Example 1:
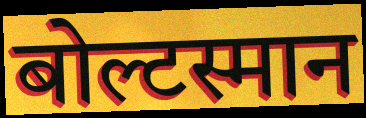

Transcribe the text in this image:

बोल्टस्मान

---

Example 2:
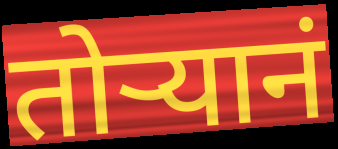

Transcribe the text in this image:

तोऱ्यानं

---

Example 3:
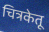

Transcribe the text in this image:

चित्रकेतू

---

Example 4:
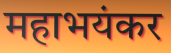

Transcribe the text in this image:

महाभयंकर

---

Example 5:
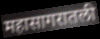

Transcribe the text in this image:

महासागरातली